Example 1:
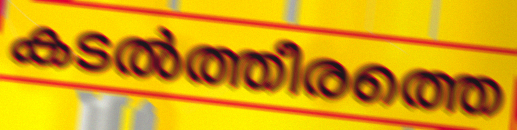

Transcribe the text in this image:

കടൽത്തീരത്തെ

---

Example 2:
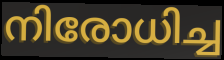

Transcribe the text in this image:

നിരോധിച്ച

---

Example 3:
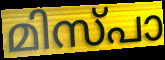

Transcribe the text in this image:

മിസ്പാ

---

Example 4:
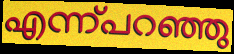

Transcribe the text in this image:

എന്ന്പറഞ്ഞു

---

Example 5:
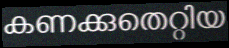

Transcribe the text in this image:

കണക്കുതെറ്റിയ